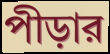
পীড়ার